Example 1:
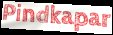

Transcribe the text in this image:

Pindkapar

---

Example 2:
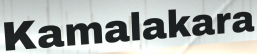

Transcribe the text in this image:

Kamalakara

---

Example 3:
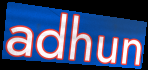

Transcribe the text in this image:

adhun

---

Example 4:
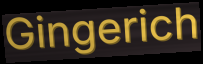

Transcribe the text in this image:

Gingerich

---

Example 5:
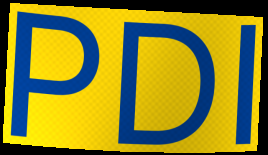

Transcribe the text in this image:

PDI